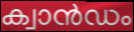
ക്വാൻഡം